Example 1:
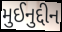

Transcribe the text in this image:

મુઈનુદ્દીન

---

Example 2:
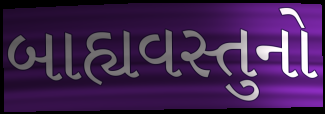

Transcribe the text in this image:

બાહ્યવસ્તુનો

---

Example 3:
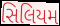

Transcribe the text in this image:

સિલિયમ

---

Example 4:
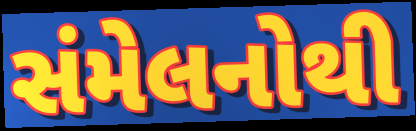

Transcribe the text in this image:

સંમેલનોથી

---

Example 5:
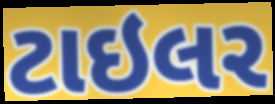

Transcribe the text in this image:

ટાઇલર